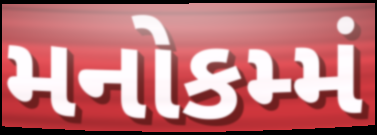
મનોકમ્મં